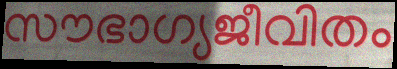
സൗഭാഗ്യജീവിതം